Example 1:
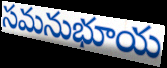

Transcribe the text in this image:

సమనుభూయ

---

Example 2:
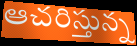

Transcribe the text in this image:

ఆచరిస్తున్న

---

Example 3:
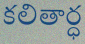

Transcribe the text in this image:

కలితార్ధ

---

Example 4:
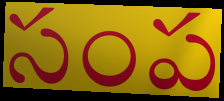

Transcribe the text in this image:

సంప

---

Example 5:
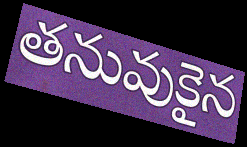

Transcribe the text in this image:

తనువుకైన